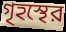
গৃহস্থের